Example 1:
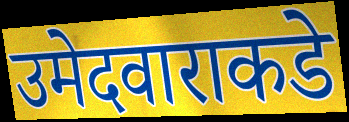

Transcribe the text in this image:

उमेदवाराकडे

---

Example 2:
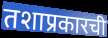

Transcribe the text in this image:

तशाप्रकारची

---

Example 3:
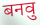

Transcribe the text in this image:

बनवु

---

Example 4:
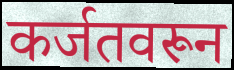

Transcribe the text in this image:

कर्जतवरून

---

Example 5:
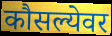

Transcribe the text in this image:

कौसल्येवर